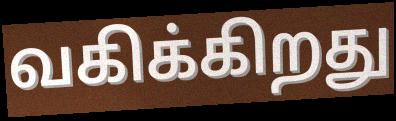
வகிக்கிறது